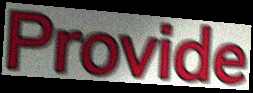
Provide